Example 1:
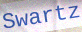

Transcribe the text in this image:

Swartz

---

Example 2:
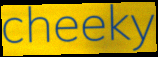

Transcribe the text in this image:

cheeky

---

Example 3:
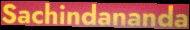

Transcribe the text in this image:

Sachindananda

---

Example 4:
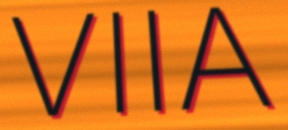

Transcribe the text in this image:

VIIA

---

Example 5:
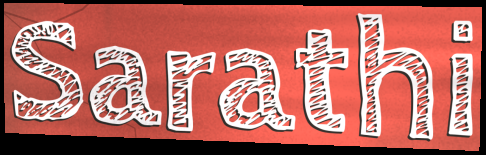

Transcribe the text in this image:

Sarathi